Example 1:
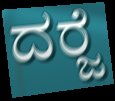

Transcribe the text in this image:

ದರ‍್ಜೆ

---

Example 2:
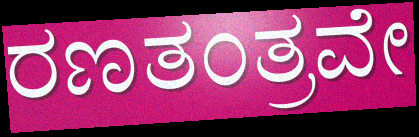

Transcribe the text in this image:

ರಣತಂತ್ರವೇ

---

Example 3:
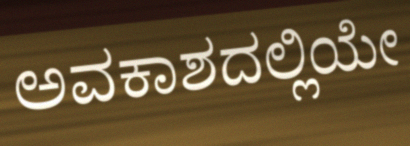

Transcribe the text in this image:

ಅವಕಾಶದಲ್ಲಿಯೇ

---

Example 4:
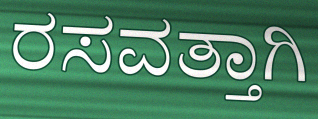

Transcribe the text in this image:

ರಸವತ್ತಾಗಿ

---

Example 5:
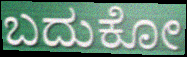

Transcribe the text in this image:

ಬದುಕೋ